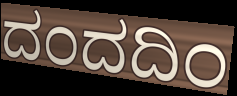
ದಂದದಿಂ